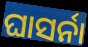
ଘାସର୍ନା